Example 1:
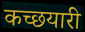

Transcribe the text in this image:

कच्छयारी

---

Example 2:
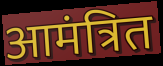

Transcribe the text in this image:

आमंत्रित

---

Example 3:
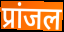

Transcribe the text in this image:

प्रांजल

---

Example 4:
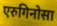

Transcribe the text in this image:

एरुगिनोसा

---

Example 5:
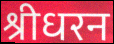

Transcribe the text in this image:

श्रीधरन